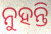
ନୁହନ୍ତି